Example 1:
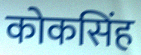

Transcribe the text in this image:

कोकसिंह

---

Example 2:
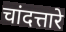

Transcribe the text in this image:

चांदत्तारे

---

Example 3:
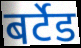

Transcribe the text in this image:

बर्टेड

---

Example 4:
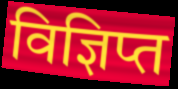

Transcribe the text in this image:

विज्ञिप्त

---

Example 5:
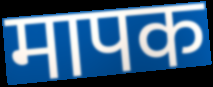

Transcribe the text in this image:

मापक